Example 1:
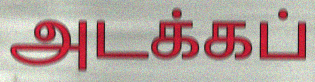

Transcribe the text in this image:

அடக்கப்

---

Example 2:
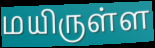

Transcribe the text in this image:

மயிருள்ள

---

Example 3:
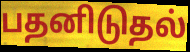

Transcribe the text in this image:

பதனிடுதல்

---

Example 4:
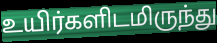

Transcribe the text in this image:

உயிர்களிடமிருந்து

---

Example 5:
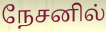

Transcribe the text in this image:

நேசனில்